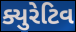
ક્યુરેટિવ